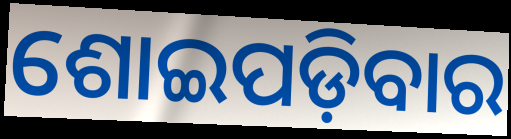
ଶୋଇପଡ଼ିବାର